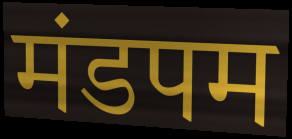
मंडपम